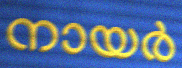
നായർ